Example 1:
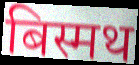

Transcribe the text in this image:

बिस्मथ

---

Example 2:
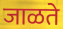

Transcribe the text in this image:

जाळते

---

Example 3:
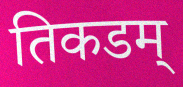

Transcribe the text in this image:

तिकडम्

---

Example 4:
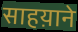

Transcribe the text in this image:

साहय़ाने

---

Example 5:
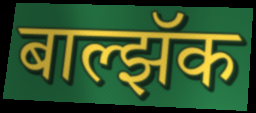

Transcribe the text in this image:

बाल्झॅक